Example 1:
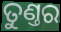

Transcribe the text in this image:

ତୁଣ୍ତର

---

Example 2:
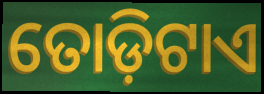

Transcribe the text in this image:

ତୋଡ଼ିଟାଏ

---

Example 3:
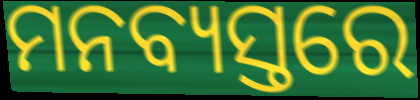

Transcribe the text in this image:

ମନବ୍ୟସ୍ତରେ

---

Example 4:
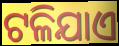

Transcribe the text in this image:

ଟଳିଯାଏ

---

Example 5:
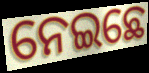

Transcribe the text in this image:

ନେଇଛେ